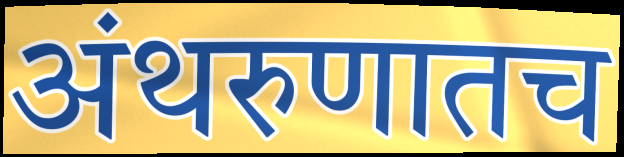
अंथरुणातच